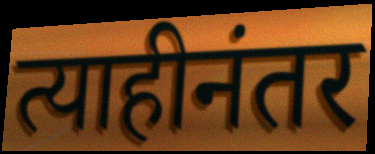
त्याहीनंतर